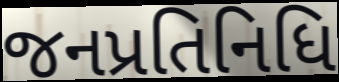
જનપ્રતિનિધિ